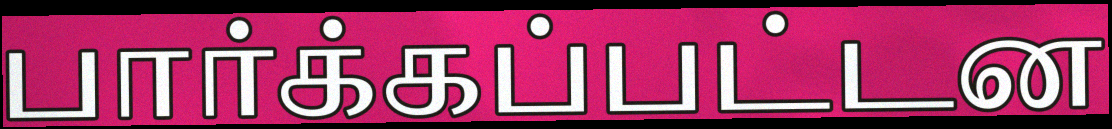
பார்க்கப்பட்டன